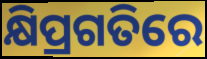
କ୍ଷିପ୍ରଗତିରେ